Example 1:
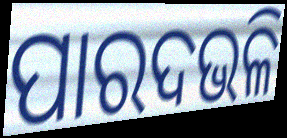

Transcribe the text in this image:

ପାରଦଭଳି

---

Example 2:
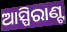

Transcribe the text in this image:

ଆସ୍ପିରାଣ୍ଟ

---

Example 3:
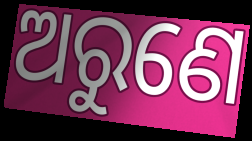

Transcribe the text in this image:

ଅରୁଣେ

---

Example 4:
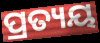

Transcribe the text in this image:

ପ୍ରତ୍ୟୟ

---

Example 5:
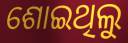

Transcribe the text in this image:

ଶୋଇଥିଲୁ